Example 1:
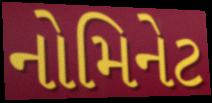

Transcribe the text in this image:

નોમિનેટ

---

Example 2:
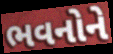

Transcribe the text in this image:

ભવનોને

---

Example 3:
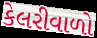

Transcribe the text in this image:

કેલરીવાળો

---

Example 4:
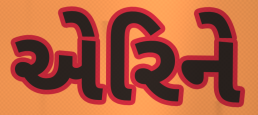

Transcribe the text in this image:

એરિને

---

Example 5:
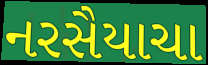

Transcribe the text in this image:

નરસૈયાચા